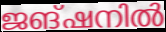
ജങ്ഷനിൽ